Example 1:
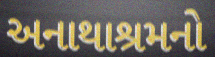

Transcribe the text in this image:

અનાથાશ્રમનો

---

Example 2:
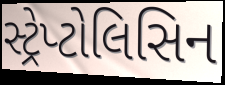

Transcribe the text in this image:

સ્ટ્રેપ્ટોલિસિન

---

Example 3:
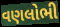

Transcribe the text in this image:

વણલોભી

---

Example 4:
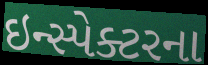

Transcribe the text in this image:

ઇન્સ્પેક્ટરના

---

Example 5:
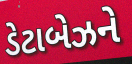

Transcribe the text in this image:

ડેટાબેઝને